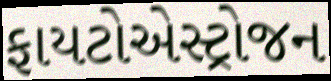
ફાયટોએસ્ટ્રોજન